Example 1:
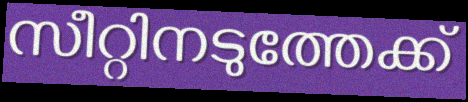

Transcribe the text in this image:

സീറ്റിനടുത്തേക്ക്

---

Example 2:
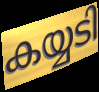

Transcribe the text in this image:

കയ്യടി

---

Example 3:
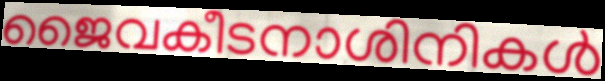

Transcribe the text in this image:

ജൈവകീടനാശിനികൾ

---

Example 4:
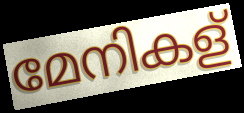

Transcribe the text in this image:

മേനികള്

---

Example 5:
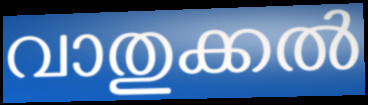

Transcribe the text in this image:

വാതുക്കൽ